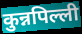
कुन्नपिल्ली